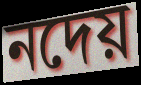
নদেয়